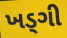
ખડ્ગી